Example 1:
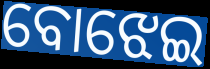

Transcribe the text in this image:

ବୋଝେଇ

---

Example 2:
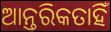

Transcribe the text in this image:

ଆନ୍ତରିକତାହିଁ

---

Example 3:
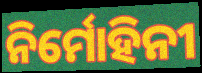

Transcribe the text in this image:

ନିର୍ମୋହିନୀ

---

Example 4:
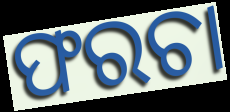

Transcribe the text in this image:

ଫରଚା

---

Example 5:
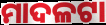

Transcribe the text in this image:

ମାଦଳଟା